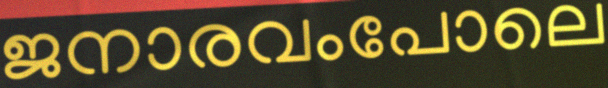
ജനാരവംപോലെ